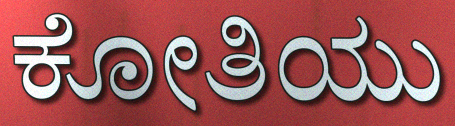
ಕೋತಿಯು